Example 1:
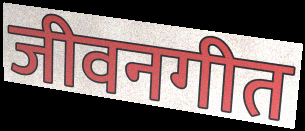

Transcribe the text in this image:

जीवनगीत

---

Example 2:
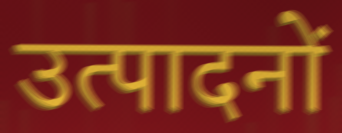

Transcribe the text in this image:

उत्पादनों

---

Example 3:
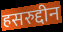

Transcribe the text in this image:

हसरुद्दीन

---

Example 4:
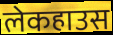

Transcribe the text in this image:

लेकहाउस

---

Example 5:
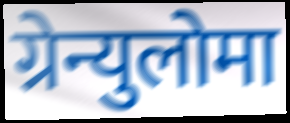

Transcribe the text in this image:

ग्रेन्युलोमा